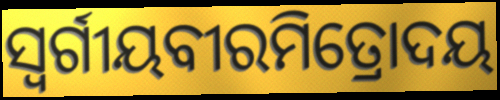
ସ୍ୱର୍ଗୀୟବୀରମିତ୍ରୋଦୟ